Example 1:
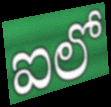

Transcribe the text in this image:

ఐలో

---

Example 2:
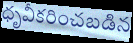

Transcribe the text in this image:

ధృవీకరించబడిన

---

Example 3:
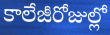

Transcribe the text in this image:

కాలేజీరోజుల్లో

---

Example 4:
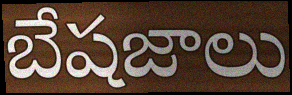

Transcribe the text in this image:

బేషజాలు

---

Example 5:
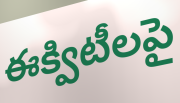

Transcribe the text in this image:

ఈక్విటీలపై